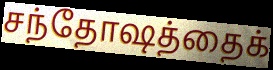
சந்தோஷத்தைக்